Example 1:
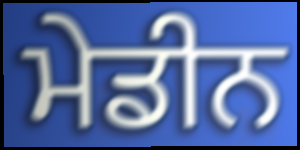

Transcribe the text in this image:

ਮੇਡੀਨ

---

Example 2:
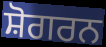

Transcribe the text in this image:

ਸ਼ੋਗਰਨ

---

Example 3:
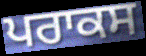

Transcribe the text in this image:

ਪਰਾਕਸ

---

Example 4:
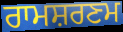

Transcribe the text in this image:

ਰਾਮਸ਼ਰਣਮ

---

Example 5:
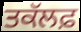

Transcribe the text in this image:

ਤਕੱਲਫ਼